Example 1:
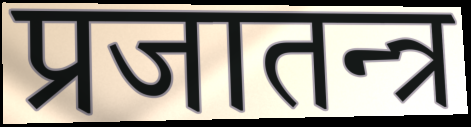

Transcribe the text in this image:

प्रजातन्त्र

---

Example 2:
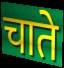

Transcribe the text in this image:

चाते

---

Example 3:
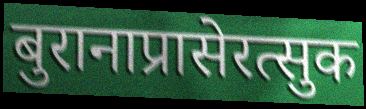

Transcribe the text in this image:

बुरानाप्रासेरत्सुक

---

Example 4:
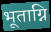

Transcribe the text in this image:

भूताग्नि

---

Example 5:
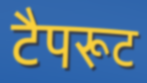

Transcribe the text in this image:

टैपरूट